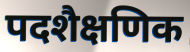
पदशैक्षणिक